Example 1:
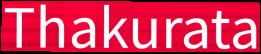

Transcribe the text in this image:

Thakurata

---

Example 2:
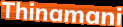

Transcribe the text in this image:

Thinamani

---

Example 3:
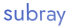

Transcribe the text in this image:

subray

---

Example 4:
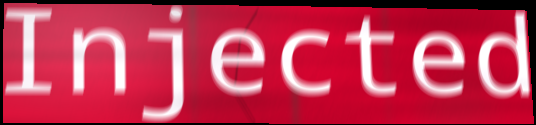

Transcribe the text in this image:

Injected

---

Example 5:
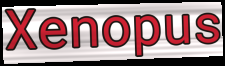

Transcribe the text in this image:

Xenopus